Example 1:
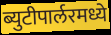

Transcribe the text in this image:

ब्युटीपार्लरमध्ये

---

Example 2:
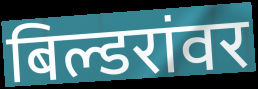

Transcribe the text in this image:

बिल्डरांवर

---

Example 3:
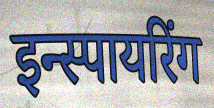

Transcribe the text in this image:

इन्स्पायरिंग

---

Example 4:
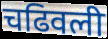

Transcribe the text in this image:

चढिवली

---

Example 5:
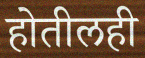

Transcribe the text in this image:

होतीलही